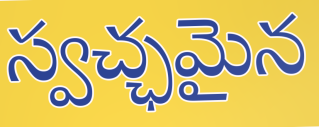
స్వచ్ఛమైన